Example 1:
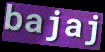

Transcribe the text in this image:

bajaj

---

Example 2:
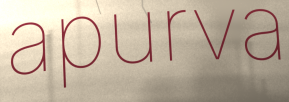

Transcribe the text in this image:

apurva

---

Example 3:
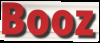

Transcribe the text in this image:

Booz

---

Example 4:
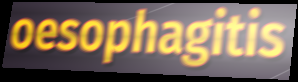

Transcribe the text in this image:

oesophagitis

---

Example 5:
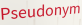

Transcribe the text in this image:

Pseudonym